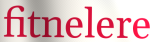
fitnelere